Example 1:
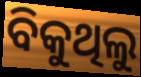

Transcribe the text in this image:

ବିକୁଥିଲୁ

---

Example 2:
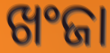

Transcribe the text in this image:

ଖଂଜା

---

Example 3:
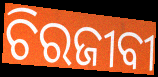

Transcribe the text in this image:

ଚିରଜୀବୀ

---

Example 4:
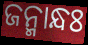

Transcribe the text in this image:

ଜନ୍ମାନ୍ଧଃ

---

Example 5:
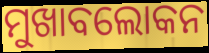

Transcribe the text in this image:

ମୁଖାବଲୋକନ